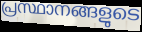
പ്രസ്ഥാനങ്ങളുടെ